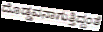
ದೊಡ್ಡವನಾಗುತ್ತಿದ್ದಂತೆ